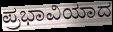
ಪ್ರಭಾವಿಯಾದ